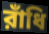
রাঁধি